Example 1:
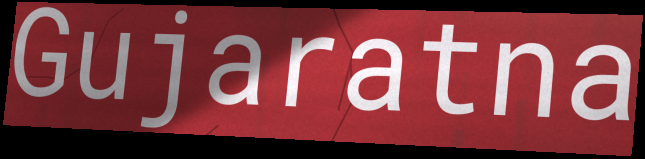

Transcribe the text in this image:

Gujaratna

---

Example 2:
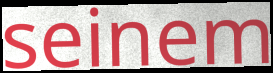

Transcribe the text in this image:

seinem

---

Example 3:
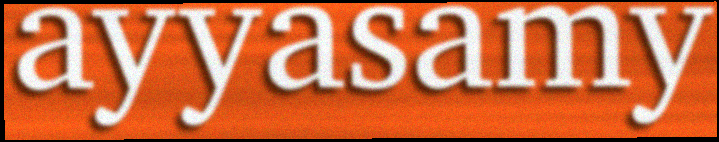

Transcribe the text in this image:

ayyasamy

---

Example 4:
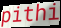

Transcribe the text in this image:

pithi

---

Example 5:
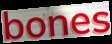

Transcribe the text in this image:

bones